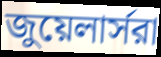
জুয়েলার্সরা